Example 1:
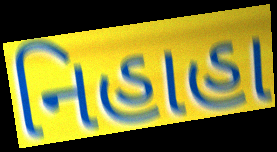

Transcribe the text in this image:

નિહાહા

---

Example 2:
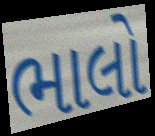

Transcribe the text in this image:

ભાલો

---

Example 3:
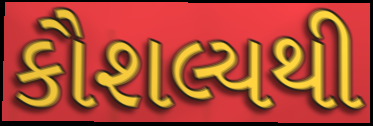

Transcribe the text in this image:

કૌશલ્યથી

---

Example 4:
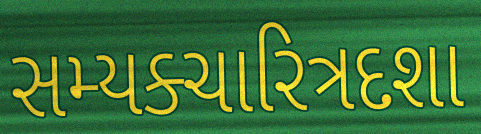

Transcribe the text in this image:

સમ્યક્ચારિત્રદશા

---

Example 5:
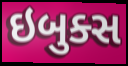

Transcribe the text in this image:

ઇબુક્સ